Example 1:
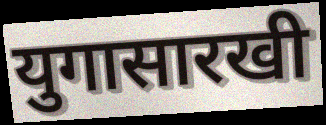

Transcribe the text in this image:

युगासारखी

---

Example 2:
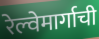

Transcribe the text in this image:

रेल्वेमार्गाची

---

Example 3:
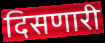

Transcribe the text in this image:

दिसणारी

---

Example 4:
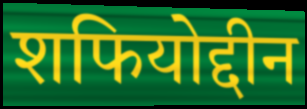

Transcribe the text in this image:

शफियोद्दीन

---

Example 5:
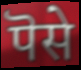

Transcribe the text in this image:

पॆसे